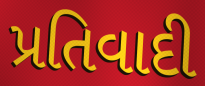
પ્રતિવાદી